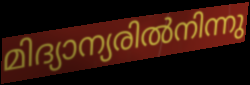
മിദ്യാന്യരിൽനിന്നു